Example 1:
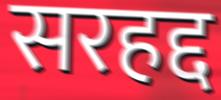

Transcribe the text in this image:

सरहद्द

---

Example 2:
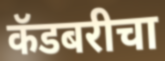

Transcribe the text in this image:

कॅडबरीचा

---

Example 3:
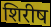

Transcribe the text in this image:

शिरीष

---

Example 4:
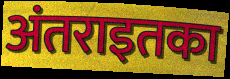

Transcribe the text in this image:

अंतराइतका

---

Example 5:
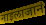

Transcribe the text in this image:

नाइलाजानं